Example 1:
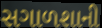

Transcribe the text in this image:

સગાળશાની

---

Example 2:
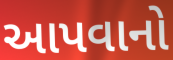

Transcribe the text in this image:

આપવાનો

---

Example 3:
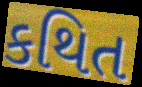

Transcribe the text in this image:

કથિત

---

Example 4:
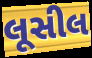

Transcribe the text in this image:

લૂસીલ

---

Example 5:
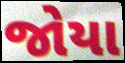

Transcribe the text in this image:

જોયા